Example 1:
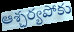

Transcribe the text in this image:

ఆశ్చర్యపోకు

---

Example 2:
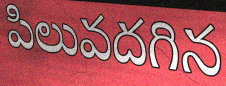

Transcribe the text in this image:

పిలువదగిన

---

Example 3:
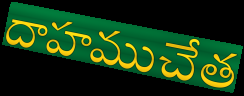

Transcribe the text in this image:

దాహముచేత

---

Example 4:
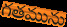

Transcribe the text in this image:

గతమును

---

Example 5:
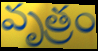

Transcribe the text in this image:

వృత్రం